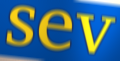
sev